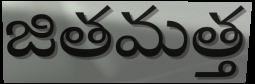
జితమత్త